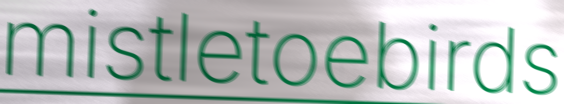
mistletoebirds